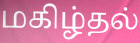
மகிழ்தல்